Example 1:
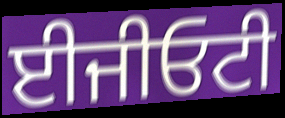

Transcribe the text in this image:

ਈਜੀਓਟੀ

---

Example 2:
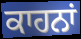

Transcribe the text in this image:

ਕਾਹਨਾਂ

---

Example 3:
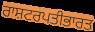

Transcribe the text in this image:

ਰਾਸ਼ਟਰਪਤੀਭਾਰਤ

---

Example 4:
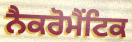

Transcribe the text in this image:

ਨੈਕਰੋਮੈਂਟਿਕ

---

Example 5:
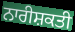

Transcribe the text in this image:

ਨਾਰੀਸ਼ਕਤੀ